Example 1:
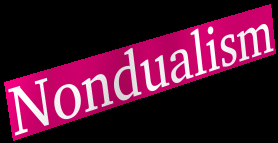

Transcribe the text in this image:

Nondualism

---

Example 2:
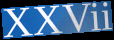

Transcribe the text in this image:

XXVii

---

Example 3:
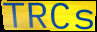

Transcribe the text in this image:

TRCs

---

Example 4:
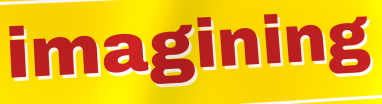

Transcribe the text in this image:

imagining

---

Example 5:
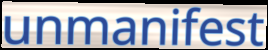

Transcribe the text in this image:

unmanifest